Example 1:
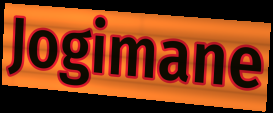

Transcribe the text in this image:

Jogimane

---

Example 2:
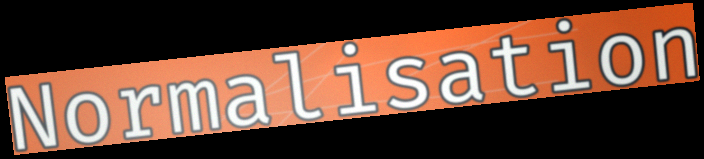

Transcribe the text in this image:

Normalisation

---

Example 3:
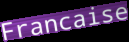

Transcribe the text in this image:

Francaise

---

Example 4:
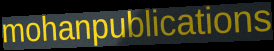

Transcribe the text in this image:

mohanpublications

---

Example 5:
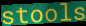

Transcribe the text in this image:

stools